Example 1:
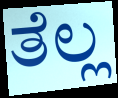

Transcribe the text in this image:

ತೆಲ್ಲ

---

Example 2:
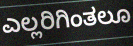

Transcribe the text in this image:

ಎಲ್ಲರಿಗಿಂತಲೂ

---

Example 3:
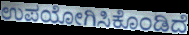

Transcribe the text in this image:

ಉಪಯೋಗಿಸಿಕೊಂಡಿದೆ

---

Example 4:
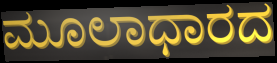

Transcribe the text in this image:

ಮೂಲಾಧಾರದ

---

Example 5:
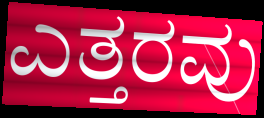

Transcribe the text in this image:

ಎತ್ತರವು